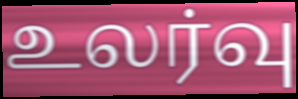
உலர்வு